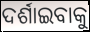
ଦର୍ଶାଇବାକୁ